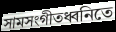
সামসংগীতধ্বনিতে